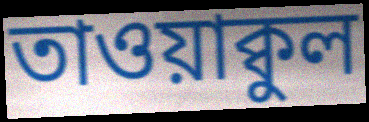
তাওয়াক্বুল